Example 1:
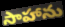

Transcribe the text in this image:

సాహాను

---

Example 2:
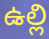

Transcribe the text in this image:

ఉల్లి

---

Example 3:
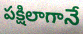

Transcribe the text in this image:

పక్షిలాగానే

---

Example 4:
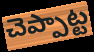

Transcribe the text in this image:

చెప్పాట్ట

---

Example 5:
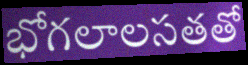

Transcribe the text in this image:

భోగలాలసతతో